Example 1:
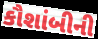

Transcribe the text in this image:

કૌશાંબીની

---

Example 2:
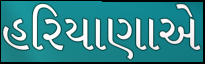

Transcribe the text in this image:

હરિયાણાએ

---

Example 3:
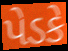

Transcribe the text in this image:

પેડકે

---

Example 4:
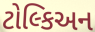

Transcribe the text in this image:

ટોલ્કિઅન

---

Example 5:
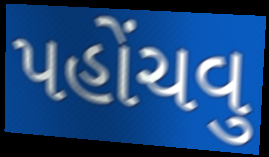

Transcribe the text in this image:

પહોંચવુ